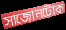
সাজোনটোক